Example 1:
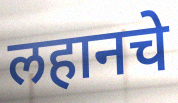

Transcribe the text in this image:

लहानचे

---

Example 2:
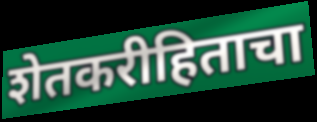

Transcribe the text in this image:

शेतकरीहिताचा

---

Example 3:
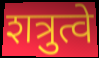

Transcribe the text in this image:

शत्रुत्वे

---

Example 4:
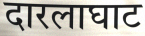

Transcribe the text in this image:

दारलाघाट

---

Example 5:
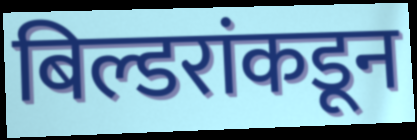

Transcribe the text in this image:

बिल्डरांकडून